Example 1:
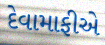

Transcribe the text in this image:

દેવામાફીએ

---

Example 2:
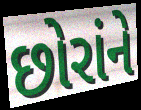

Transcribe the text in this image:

છોરાંને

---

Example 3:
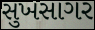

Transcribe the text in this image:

સુખસાગર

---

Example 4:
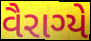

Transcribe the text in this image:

વૈરાગ્યે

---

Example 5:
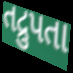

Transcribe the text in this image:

તદ્રુપતા